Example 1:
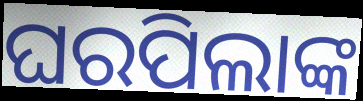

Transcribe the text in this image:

ଘରପିଲାଙ୍କ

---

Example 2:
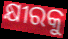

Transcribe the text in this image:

କ୍ଷୀରକୁ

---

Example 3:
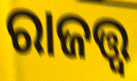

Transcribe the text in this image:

ରାଜତ୍ତ୍ୱ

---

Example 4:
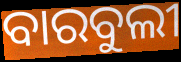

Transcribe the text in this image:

ବାରବୁଲୀ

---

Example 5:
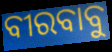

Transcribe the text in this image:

ବୀରବାବୁ